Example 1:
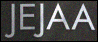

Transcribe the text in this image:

JEJAA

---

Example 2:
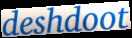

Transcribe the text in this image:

deshdoot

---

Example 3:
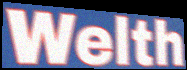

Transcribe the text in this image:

Welth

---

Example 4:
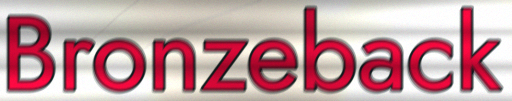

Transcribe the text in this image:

Bronzeback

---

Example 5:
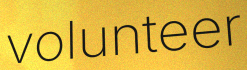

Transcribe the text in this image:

volunteer